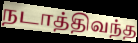
நடாத்திவந்த